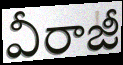
వీరాజీ